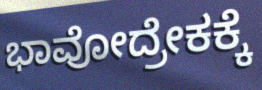
ಭಾವೋದ್ರೇಕಕ್ಕೆ